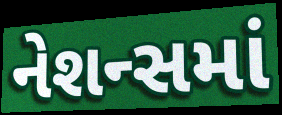
નેશન્સમાં